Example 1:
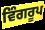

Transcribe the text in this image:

ਵਿੰਗਰੂਪ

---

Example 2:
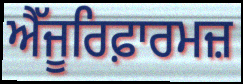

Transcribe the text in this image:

ਐੱਜੂਰਿਫ਼ਾਰਮਜ਼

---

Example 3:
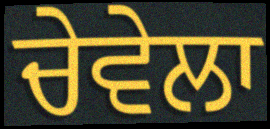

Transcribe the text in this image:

ਚੇਵੇਲਾ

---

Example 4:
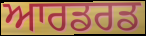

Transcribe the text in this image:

ਆਰਡਰਡ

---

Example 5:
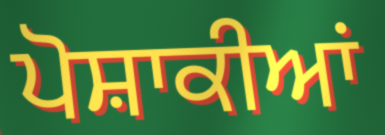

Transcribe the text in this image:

ਪੋਸ਼ਾਕੀਆਂ